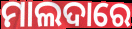
ମାଲଦାରେ